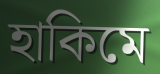
হাকিমে